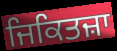
ਜਿਕਿਤਜ਼ਾ